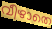
വീഴാതെ